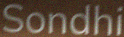
Sondhi